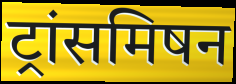
ट्रांसमिषन